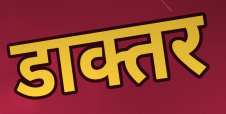
डाक्तर